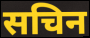
सचिन